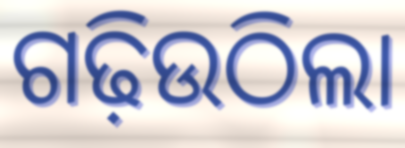
ଗଢ଼ିଉଠିଲା